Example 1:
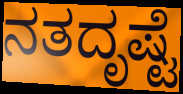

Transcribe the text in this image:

ನತದೃಷ್ಟೆ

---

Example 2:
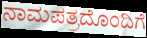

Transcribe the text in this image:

ನಾಮಪತ್ರದೊಂದಿಗೆ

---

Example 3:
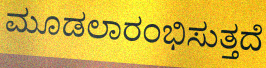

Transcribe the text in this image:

ಮೂಡಲಾರಂಭಿಸುತ್ತದೆ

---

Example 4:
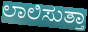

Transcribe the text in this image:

ಲಾಲಿಸುತ್ತಾ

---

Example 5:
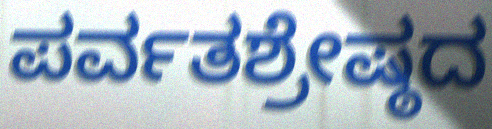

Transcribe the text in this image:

ಪರ್ವತಶ್ರೇಷ್ಠದ